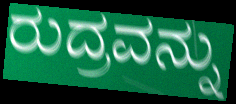
ರುದ್ರವನ್ನು